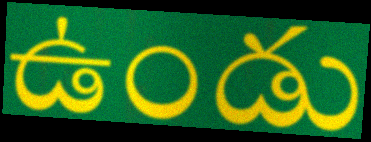
ఉండు